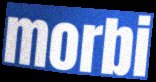
morbi